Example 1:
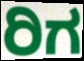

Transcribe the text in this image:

ರಿಗ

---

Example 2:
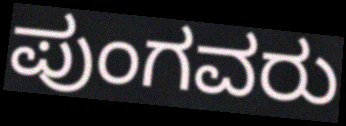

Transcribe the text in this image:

ಪುಂಗವರು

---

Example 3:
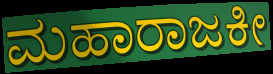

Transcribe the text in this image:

ಮಹಾರಾಜಕೀ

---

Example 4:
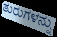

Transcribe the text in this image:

ತುರುಗಳನ್ನು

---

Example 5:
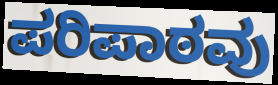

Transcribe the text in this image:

ಪರಿಪಾಠವು